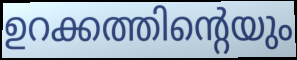
ഉറക്കത്തിന്റെയും